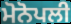
ਮੋਨੋਪਲੀ